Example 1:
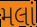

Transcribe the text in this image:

મલાં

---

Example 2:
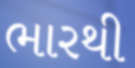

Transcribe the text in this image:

ભારથી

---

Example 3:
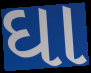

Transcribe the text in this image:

ઘા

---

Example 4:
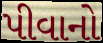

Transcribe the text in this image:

પીવાનો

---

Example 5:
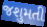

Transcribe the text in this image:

જશુમતી